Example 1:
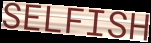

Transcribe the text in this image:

SELFISH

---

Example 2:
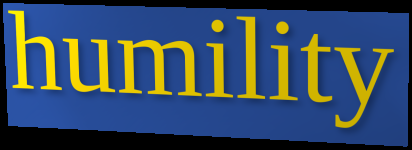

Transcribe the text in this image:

humility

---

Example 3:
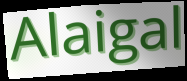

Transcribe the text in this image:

Alaigal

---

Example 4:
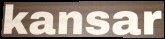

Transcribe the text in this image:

kansar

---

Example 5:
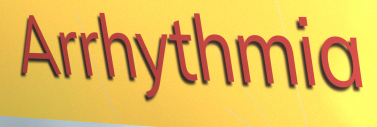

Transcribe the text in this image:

Arrhythmia